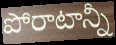
పోరాటాన్నీ